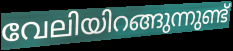
വേലിയിറങ്ങുന്നുണ്ട്